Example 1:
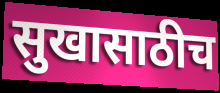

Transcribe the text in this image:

सुखासाठीच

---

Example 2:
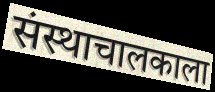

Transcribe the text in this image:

संस्थाचालकाला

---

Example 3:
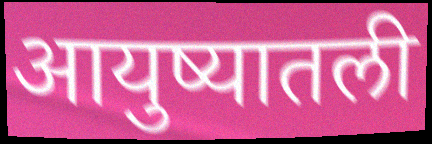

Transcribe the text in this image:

आयुष्यातली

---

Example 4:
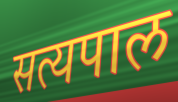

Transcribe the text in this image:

सत्यपाल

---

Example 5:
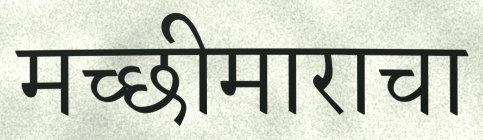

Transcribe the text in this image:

मच्छीमाराचा